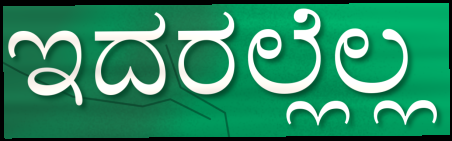
ಇದರಲ್ಲೆಲ್ಲ